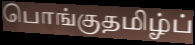
பொங்குதமிழ்ப்